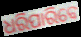
ଧରିପାରିବେ